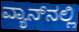
ವ್ಯಾನ್‌ನಲ್ಲಿ